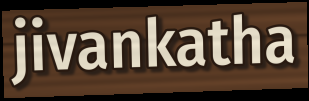
jivankatha